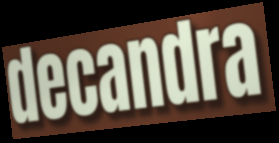
decandra